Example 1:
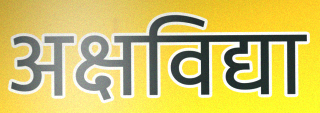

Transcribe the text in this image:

अक्षविद्या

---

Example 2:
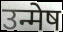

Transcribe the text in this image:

उन्मेष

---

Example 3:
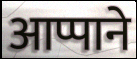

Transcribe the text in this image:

आप्पाने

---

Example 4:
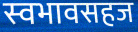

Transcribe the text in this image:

स्वभावसहज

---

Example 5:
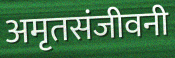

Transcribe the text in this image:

अमृतसंजीवनी